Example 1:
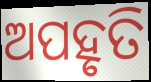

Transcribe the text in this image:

ଅପହୃତି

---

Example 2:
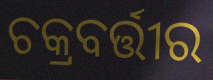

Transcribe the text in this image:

ଚକ୍ରବର୍ତ୍ତୀର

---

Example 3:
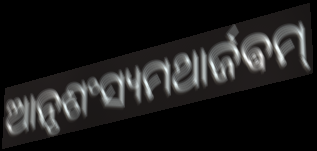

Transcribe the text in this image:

ଆନୃଶଂସ୍ୟମଥାର୍ଜଵମ୍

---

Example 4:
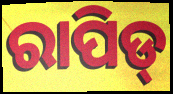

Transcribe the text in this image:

ରାପିଡ୍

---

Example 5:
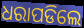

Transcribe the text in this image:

ଧରାପଡିଲେ